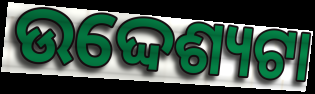
ଉଦ୍ଦେଶ୍ୟଟା